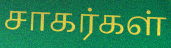
சாகர்கள்